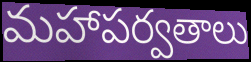
మహాపర్వతాలు